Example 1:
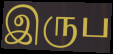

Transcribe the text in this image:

இருப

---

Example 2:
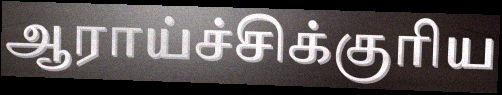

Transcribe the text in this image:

ஆராய்ச்சிக்குரிய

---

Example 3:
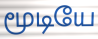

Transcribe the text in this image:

மூடியே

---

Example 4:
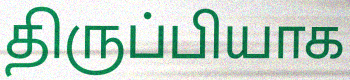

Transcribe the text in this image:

திருப்பியாக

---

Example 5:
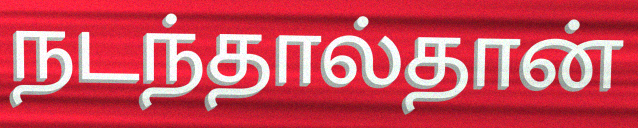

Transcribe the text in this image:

நடந்தால்தான்